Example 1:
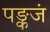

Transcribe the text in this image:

पङ्कजं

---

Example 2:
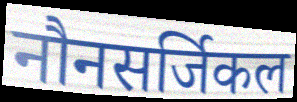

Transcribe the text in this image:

नौनसर्जिकल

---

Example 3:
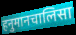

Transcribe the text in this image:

हनुमानचालिसा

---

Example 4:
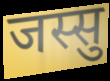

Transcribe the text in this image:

जस्सु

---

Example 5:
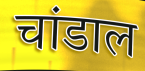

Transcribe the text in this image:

चांडाल